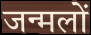
जन्मलों